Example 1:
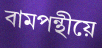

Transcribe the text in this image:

বামপন্থীয়ে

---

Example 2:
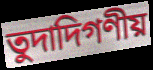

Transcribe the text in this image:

তুদাদিগণীয়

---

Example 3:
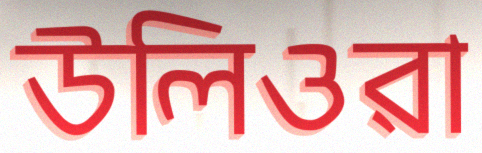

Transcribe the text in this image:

উলিওৱা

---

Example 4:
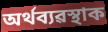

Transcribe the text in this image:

অৰ্থব্যৱস্থাক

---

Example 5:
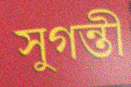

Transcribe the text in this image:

সুগন্তী